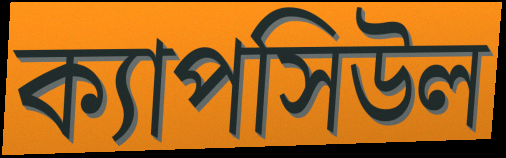
ক্যাপসিউল